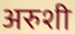
अरुशी